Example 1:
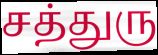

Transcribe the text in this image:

சத்துரு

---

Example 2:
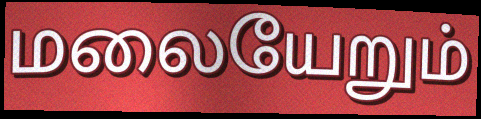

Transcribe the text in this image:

மலையேறும்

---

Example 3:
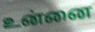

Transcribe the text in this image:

உன்னை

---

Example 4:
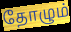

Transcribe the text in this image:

தோழும்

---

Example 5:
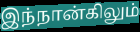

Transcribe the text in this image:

இந்நான்கிலும்